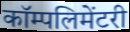
कॉम्पलिमेंटरी